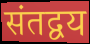
संतद्वय